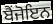
ਬੈਂਜੋਇਨ